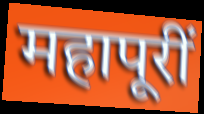
महापूरीं